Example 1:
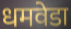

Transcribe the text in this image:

धमवेडा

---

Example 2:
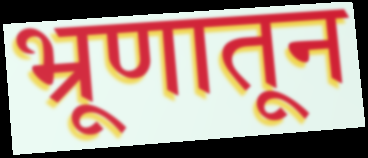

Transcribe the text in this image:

भ्रूणातून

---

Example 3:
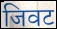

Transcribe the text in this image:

जिवट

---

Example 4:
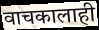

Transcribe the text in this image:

वाचकालाही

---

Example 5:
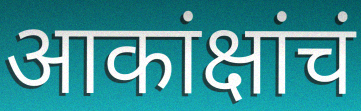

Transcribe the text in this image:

आकांक्षांचं